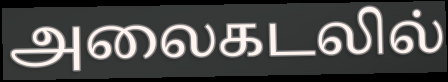
அலைகடலில்